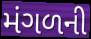
મંગળની